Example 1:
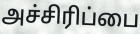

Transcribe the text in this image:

அச்சிரிப்பை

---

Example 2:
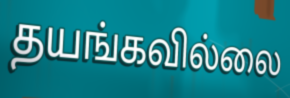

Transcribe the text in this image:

தயங்கவில்லை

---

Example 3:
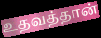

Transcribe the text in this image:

உதவத்தான்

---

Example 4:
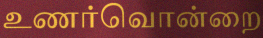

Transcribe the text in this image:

உணர்வொன்றை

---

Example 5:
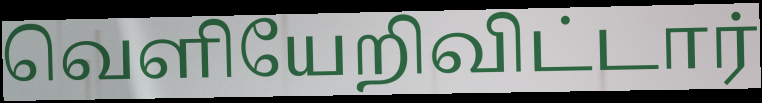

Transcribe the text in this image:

வெளியேறிவிட்டார்